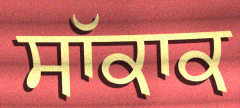
ਸਾੱਕਾਕ